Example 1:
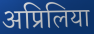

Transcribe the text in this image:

अप्रिलिया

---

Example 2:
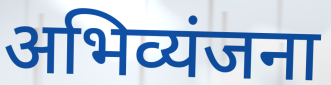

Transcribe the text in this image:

अभिव्यंजना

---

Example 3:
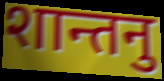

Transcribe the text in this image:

शान्तनु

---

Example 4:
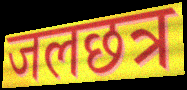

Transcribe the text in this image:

जलछत्र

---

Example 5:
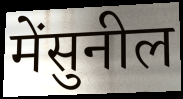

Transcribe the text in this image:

मेंसुनील